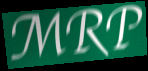
MRP